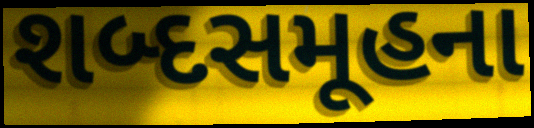
શબ્દસમૂહના